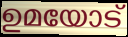
ഉമയോട്